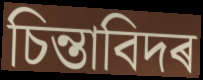
চিন্তাবিদৰ